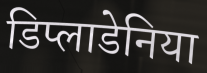
डिप्लाडेनिया